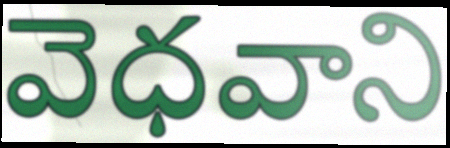
వెధవాని